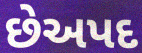
છેઅપદ